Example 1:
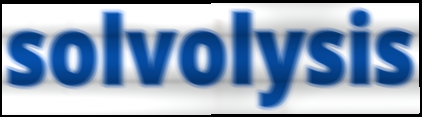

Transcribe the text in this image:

solvolysis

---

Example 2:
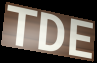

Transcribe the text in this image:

TDE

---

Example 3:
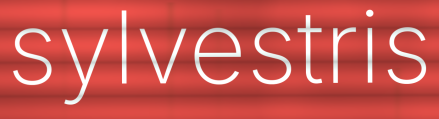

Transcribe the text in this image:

sylvestris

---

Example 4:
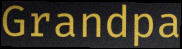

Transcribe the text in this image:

Grandpa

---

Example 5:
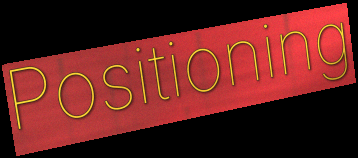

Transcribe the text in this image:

Positioning